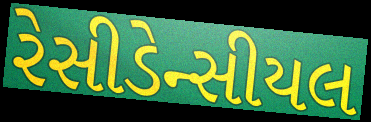
રેસીડેન્સીયલ